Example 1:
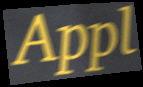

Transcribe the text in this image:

Appl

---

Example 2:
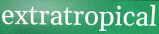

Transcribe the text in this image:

extratropical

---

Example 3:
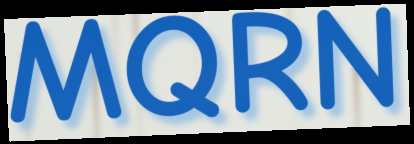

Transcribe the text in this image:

MQRN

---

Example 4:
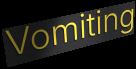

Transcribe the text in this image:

Vomiting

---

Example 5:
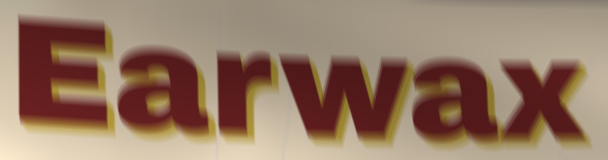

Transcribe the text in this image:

Earwax